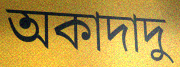
অকাদাদু